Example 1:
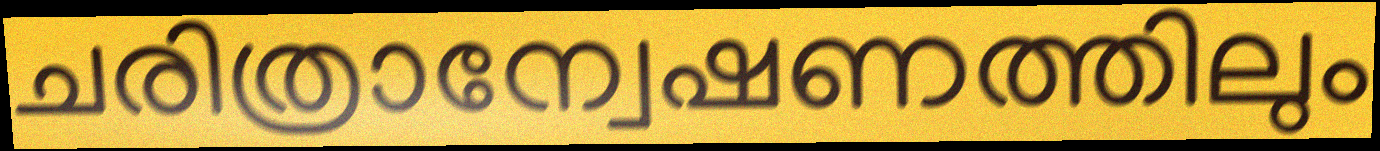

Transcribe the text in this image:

ചരിത്രാന്വേഷണത്തിലും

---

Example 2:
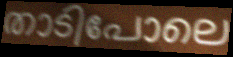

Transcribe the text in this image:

താടിപോലെ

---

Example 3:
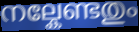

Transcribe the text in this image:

നല്കേണ്ടതും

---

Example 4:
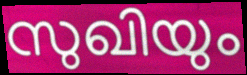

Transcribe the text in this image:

സുഖിയും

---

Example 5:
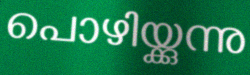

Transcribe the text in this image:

പൊഴിയ്ക്കുന്നു